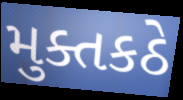
મુક્તકઠે